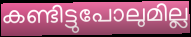
കണ്ടിട്ടുപോലുമില്ല